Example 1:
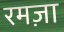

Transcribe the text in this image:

रमज़ा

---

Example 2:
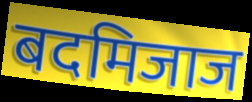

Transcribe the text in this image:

बदमिजाज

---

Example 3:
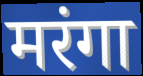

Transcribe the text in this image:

मरंगा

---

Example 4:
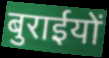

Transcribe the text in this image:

बुराईयों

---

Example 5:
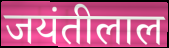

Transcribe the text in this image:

जयंतीलाल